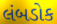
લંબડોક